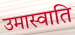
उमास्वाति